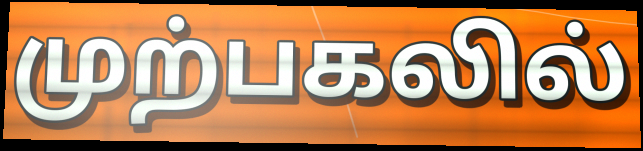
முற்பகலில்